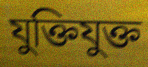
যুক্তিযুক্ত